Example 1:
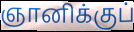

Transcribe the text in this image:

ஞானிக்குப்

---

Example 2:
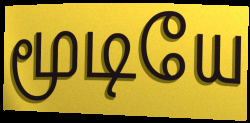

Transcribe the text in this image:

மூடியே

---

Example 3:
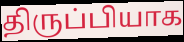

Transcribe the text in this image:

திருப்பியாக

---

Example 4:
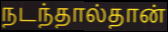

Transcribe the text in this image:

நடந்தால்தான்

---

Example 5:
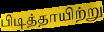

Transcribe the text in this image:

பிடித்தாயிற்று